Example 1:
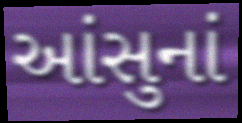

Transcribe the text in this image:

આંસુનાં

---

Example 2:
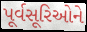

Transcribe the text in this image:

પૂર્વસૂરિઓને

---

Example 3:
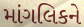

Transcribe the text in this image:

માંગલિકને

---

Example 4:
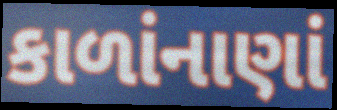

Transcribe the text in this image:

કાળાંનાણાં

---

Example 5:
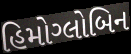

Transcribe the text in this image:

હિમોગ્લોબિન